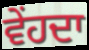
ਵੇਂਹਦਾ